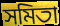
সমিতা